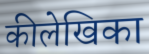
कीलेखिका